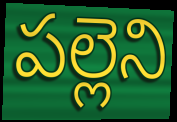
పల్లెని